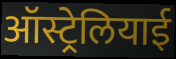
ऑस्ट्रेलियाई